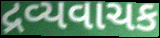
દ્રવ્યવાચક